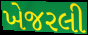
ખેજરલી